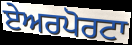
ਏਅਰਪੋਰਟਾ